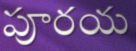
పూరయ